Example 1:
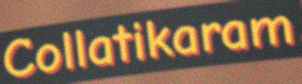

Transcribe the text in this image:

Collatikaram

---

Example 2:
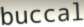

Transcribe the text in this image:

buccal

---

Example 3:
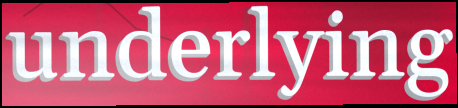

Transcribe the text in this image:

underlying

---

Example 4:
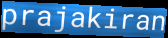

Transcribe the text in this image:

prajakiran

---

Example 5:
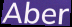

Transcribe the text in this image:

Aber